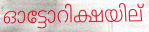
ഓട്ടോറിക്ഷയില്